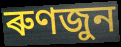
ৰুণজুন